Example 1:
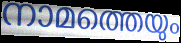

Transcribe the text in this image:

നാമത്തെയും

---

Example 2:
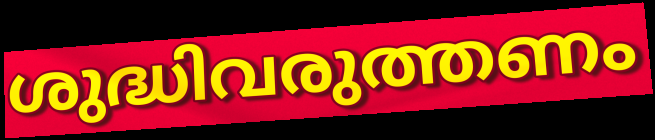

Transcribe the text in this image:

ശുദ്ധിവരുത്തണം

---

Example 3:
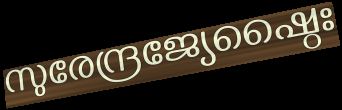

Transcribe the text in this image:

സുരേന്ദ്രജ്യേഷ്ഠൈഃ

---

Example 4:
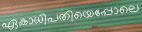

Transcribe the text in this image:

ഏകാധിപതിയെപ്പോലെ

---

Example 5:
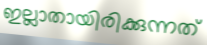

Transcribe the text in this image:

ഇല്ലാതായിരിക്കുന്നത്